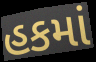
હકમાં